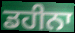
ਡਹੀਨਾ